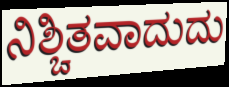
ನಿಶ್ಚಿತವಾದುದು